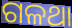
ଗଳଥା